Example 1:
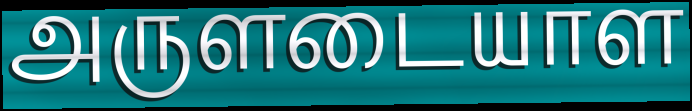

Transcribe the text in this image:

அருளடையாள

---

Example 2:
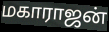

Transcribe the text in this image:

மகாராஜன்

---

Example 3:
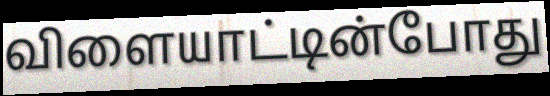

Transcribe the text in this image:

விளையாட்டின்போது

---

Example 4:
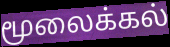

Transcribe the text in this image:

மூலைக்கல்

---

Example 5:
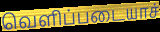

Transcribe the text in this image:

வெளிப்படையாச்